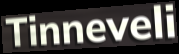
Tinneveli